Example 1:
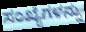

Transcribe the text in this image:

ಸಂಖ್ಯೆಗಳನ್ನು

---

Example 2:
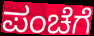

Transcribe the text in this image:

ಪಂಚೆಗೆ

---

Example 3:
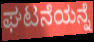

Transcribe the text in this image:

ಘಟನೆಯನ್ನೆ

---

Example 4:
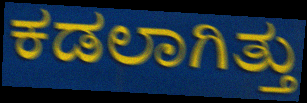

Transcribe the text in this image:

ಕಡಲಾಗಿತ್ತು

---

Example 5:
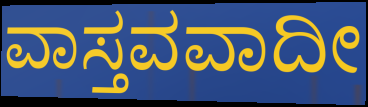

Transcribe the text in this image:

ವಾಸ್ತವವಾದೀ